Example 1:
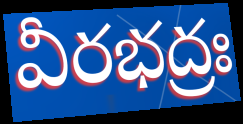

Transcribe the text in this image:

వీరభద్రః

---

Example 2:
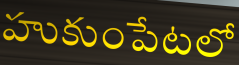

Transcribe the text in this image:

హుకుంపేటలో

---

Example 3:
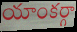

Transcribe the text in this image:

యాంకర్గా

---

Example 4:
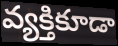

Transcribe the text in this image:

వ్యక్తికూడా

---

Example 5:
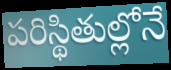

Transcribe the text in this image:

పరిస్థితుల్లోనే